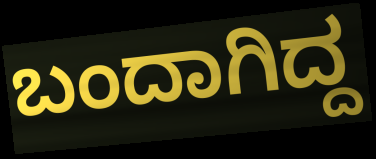
ಬಂದಾಗಿದ್ದ